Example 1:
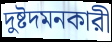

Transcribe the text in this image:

দুষ্টদমনকারী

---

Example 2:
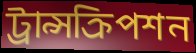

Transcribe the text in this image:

ট্রান্সক্রিপশন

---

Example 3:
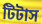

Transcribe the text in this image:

টিটাস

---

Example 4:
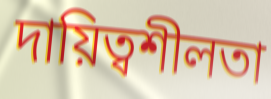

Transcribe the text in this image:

দায়িত্বশীলতা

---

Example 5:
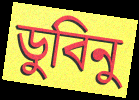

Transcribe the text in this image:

ডুবিনু